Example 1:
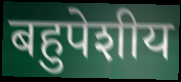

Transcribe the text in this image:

बहुपेशीय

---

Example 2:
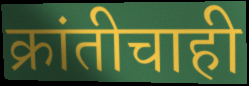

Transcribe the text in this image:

क्रांतीचाही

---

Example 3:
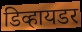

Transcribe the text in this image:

डिव्हायडर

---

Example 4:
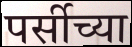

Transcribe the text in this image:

पर्सीच्या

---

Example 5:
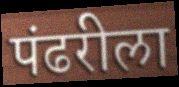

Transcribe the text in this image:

पंढरीला